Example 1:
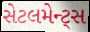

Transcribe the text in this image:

સેટલમેન્ટ્સ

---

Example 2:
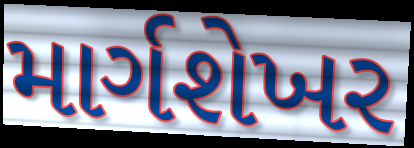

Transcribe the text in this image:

માર્ગશેખર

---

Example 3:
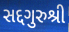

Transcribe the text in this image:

સદ્દગુરુશ્રી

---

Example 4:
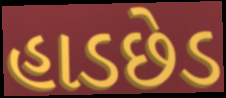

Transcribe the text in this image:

હાડછેડ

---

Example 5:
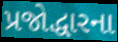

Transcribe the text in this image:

પ્રજોદ્ધારના